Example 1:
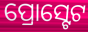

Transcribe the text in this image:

ପ୍ରୋସ୍ଟେଟ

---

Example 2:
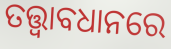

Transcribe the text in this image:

ତତ୍ତ୍ଵାବଧାନରେ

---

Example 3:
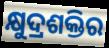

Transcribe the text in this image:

କ୍ଷୁଦ୍ରଶକ୍ତିର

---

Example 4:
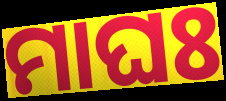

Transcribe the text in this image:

ମାଘଃ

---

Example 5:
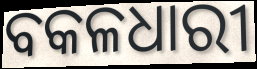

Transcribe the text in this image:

ବକଳଧାରୀ